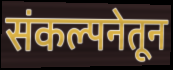
संकल्पनेतून